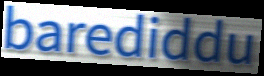
barediddu